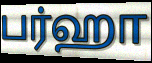
பர்ஹா